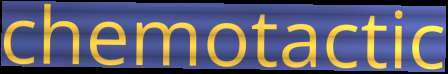
chemotactic